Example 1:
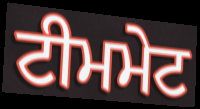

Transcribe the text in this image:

ਟੀਮਮੇਟ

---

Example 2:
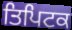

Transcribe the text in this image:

ਤਿਪਿਟਕ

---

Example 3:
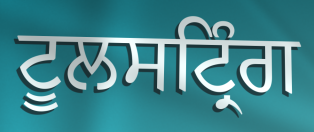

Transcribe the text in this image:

ਟੂਲਸਟ੍ਰਿੰਗ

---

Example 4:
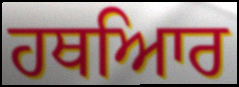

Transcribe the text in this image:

ਹਥਆਿਰ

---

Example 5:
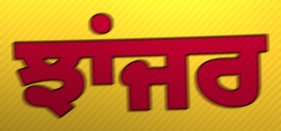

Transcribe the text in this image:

ਝਾਂਜਰ